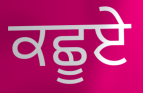
ਕਛੂਏ